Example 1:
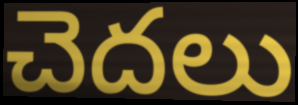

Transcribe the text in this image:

చెదలు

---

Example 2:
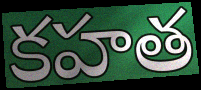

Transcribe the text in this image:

కహత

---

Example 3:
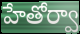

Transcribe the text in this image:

హేతోర్వా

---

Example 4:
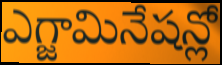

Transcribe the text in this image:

ఎగ్జామినేషన్లో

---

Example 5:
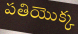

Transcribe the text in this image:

పతియొక్క